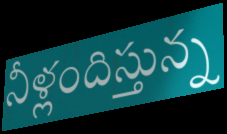
నీళ్లందిస్తున్న